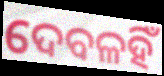
ଦେବଳହିଁ